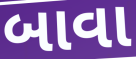
બાવા